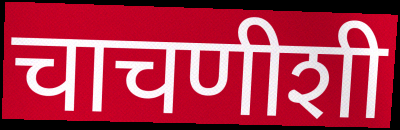
चाचणीशी